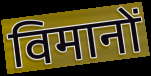
विमानों